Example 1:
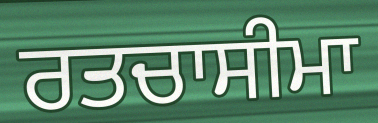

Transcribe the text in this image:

ਰਤਚਾਸੀਮਾ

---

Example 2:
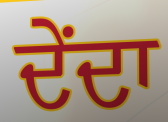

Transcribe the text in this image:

ਦੇਂਦਾ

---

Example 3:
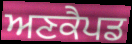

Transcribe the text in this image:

ਅਣਕੈਪਡ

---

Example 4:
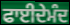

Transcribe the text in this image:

ਫਾਈਦੇਮੰਦ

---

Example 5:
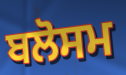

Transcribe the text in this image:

ਬਲੋਸਮ